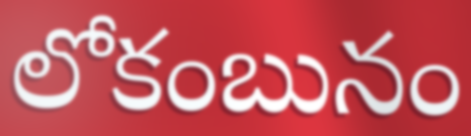
లోకంబునం